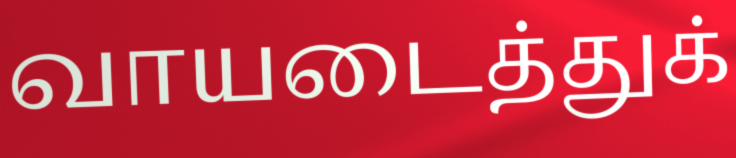
வாயடைத்துக்